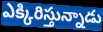
ఎక్కిరిస్తున్నాడు